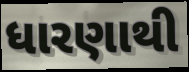
ધારણાથી